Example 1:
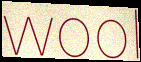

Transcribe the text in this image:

wool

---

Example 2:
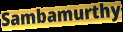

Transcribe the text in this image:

Sambamurthy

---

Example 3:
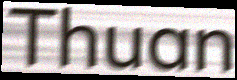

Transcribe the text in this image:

Thuan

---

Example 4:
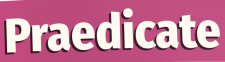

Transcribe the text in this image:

Praedicate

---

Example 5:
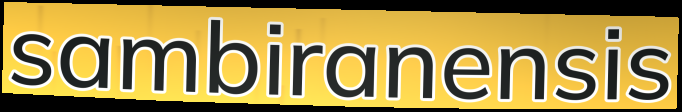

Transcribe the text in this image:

sambiranensis